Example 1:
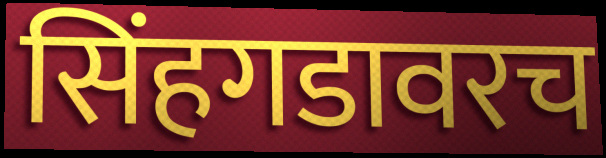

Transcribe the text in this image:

सिंहगडावरच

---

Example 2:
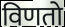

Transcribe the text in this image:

विणतो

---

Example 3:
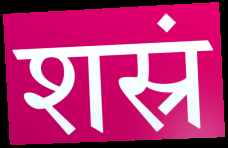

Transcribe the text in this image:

शस्रं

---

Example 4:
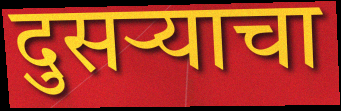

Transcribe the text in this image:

दुसऱ्याचा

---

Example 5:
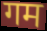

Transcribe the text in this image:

गम